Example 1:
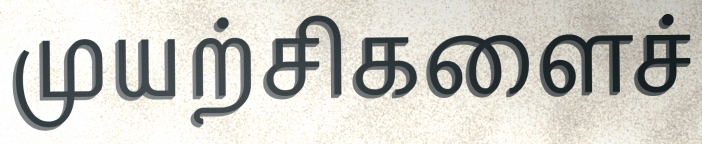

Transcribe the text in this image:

முயற்சிகளைச்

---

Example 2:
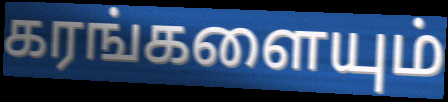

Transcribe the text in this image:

கரங்களையும்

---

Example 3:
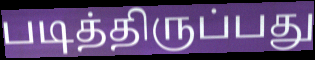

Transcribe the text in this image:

படித்திருப்பது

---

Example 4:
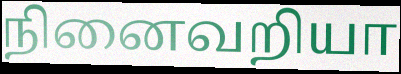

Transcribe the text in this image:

நினைவறியா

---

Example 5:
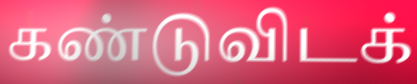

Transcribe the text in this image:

கண்டுவிடக்